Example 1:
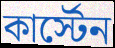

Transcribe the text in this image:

কার্স্টেন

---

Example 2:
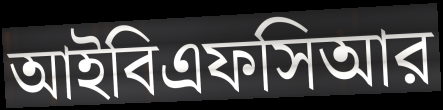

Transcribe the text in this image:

আইবিএফসিআর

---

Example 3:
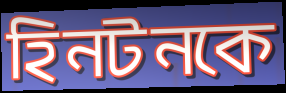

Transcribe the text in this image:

হিনটনকে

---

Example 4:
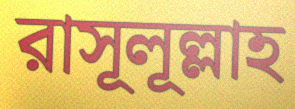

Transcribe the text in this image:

রাসূলূল্লাহ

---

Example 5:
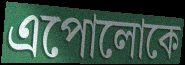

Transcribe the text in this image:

এপোলোকে